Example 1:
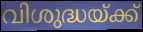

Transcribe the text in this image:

വിശുദ്ധയ്ക്ക്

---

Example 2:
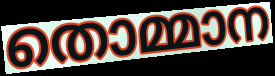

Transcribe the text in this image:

തൊമ്മാന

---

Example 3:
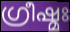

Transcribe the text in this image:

ഗ്രീഷ്മഃ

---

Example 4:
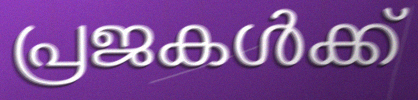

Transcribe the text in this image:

പ്രജകൾക്ക്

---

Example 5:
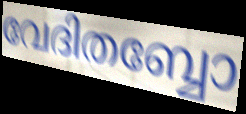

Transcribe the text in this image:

വേദിതബ്ബോ